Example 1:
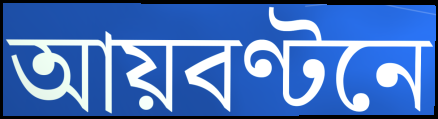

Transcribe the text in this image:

আয়বণ্টনে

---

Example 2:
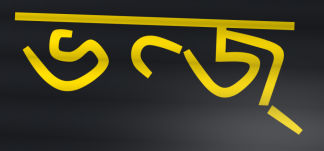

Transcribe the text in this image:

ভন্জ্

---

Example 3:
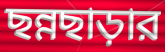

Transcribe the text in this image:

ছন্নছাড়ার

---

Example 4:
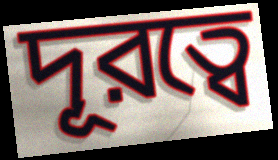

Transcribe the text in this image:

দূরত্বে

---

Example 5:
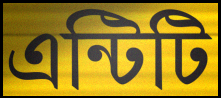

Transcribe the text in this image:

এন্টিটি